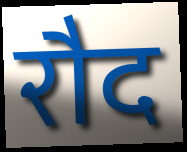
रौद